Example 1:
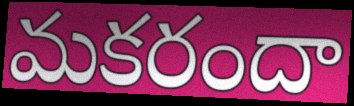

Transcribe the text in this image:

మకరందా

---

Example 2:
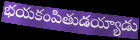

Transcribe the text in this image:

భయకంపితుడయ్యాడు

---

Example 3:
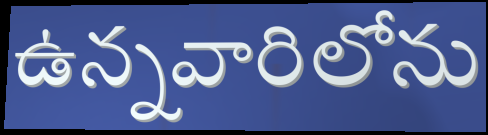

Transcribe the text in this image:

ఉన్నవారిలోను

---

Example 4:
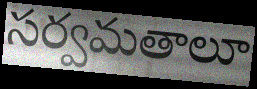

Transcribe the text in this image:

సర్వమతాలూ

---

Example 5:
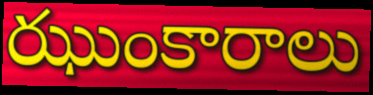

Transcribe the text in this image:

ఝుంకారాలు